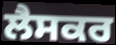
ਲੈਸਕਰ